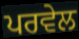
ਪਰਵੇਲ